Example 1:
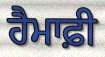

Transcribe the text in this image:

ਹੈਮਾਫ਼ੀ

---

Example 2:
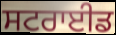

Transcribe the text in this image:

ਸਟਰਾਈਡ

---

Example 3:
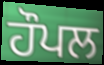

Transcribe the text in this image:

ਹੌਪਲ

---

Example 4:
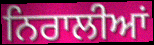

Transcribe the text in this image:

ਨਿਰਾਲੀਆਂ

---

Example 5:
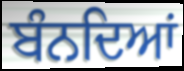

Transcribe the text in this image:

ਬੰਨਦਿਆਂ